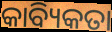
କାବ୍ୟିକତା